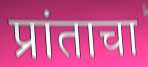
प्रांताचा